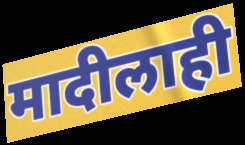
मादीलाही